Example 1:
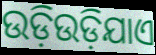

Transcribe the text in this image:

ଉଡ଼ିଉଡ଼ିଯାଏ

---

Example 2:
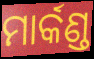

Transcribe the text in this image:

ମାର୍କଣ୍ଡ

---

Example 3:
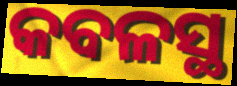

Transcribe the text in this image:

କବଳସ୍ଥ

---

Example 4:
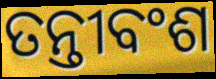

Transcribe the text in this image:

ତନ୍ତୀବଂଶ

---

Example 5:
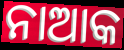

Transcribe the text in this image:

ନାଆକ